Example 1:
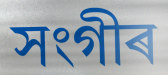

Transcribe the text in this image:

সংগীৰ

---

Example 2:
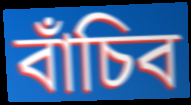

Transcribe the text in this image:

বাঁচিব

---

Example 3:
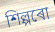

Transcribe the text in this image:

শিল্পৰো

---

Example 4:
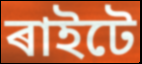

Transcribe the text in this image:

ৰাইটে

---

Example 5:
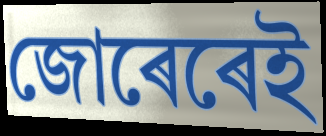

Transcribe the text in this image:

জোৰেৰেই